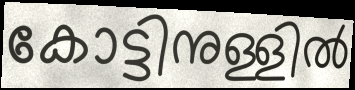
കോട്ടിനുള്ളിൽ